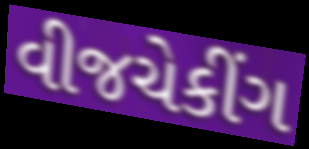
વીજચેકીંગ